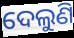
ଦେଲୁଣି